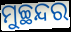
ମୁଚ୍ଛନ୍ଦର